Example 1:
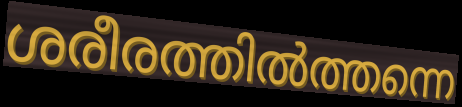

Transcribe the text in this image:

ശരീരത്തിൽത്തന്നെ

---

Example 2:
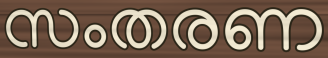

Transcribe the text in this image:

സംതരണ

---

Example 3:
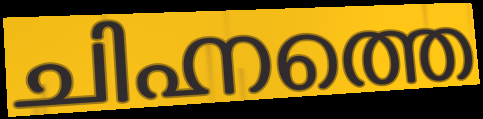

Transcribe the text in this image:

ചിഹ്നത്തെ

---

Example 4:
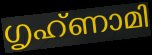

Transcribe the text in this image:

ഗൃഹ്ണാമി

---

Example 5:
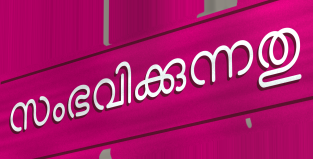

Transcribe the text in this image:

സംഭവിക്കുന്നതു